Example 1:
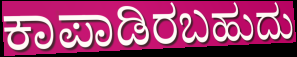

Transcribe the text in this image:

ಕಾಪಾಡಿರಬಹುದು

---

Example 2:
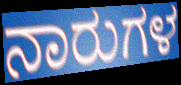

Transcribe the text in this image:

ನಾರುಗಳ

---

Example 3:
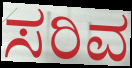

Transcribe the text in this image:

ಸರಿವ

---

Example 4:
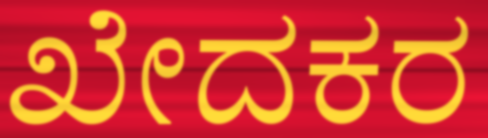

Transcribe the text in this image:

ಖೇದಕರ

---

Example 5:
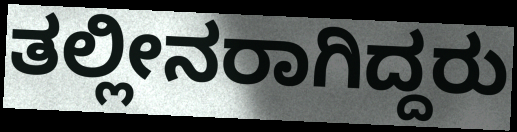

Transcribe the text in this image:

ತಲ್ಲೀನರಾಗಿದ್ದರು